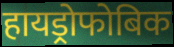
हायड्रोफोबिक